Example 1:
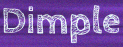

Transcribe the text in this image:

Dimple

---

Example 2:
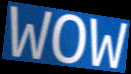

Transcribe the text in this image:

WOW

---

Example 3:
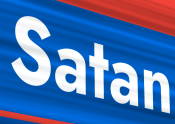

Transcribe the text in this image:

Satan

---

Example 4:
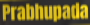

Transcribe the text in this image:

Prabhupada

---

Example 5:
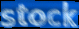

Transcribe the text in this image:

stock